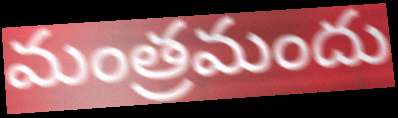
మంత్రమందు